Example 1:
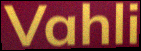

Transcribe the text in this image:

Vahli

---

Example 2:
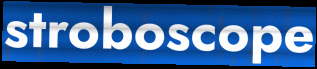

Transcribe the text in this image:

stroboscope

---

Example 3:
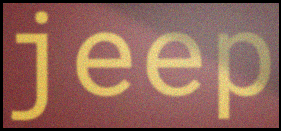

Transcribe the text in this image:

jeep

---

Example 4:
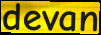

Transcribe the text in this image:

devan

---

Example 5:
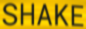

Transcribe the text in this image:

SHAKE